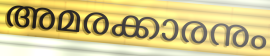
അമരക്കാരനും